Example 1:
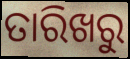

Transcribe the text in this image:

ତାରିଖରୁ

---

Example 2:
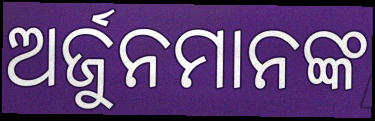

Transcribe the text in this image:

ଅର୍ଜୁନମାନଙ୍କ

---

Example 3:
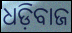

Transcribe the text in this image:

ଧଡ଼ିବାଜ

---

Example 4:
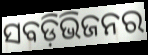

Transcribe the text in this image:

ସବଡ଼ିଭିଜନର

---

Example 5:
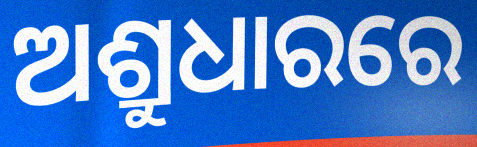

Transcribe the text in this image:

ଅଶ୍ରୁଧାରରେ